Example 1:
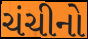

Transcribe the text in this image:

ચંચીનો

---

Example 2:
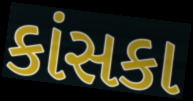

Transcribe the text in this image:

કાંસકા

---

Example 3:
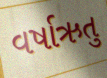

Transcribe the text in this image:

વર્ષાઋતુ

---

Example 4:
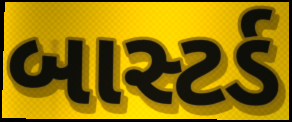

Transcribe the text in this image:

બાસ્ટર્ડ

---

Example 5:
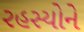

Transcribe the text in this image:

રહસ્યોને